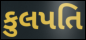
કુલપતિ